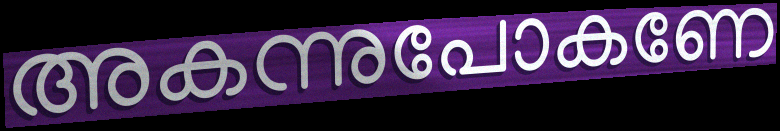
അകന്നുപോകണേ